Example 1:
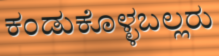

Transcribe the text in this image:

ಕಂಡುಕೊಳ್ಳಬಲ್ಲರು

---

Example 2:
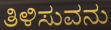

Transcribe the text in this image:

ತಿಳಿಸುವನು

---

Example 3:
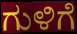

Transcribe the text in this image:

ಗುಳಿಗೆ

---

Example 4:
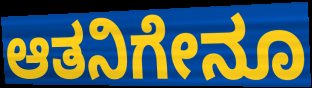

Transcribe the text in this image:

ಆತನಿಗೇನೂ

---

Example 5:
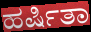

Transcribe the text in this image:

ಹರ್ಷಿತಾ